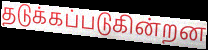
தடுக்கப்படுகின்றன